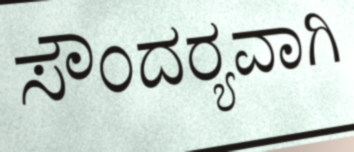
ಸೌಂದರ‍್ಯವಾಗಿ